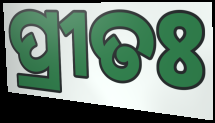
ପ୍ରୀତଃ